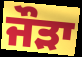
ਜੌੜਾ